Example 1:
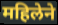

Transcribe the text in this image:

महिलेने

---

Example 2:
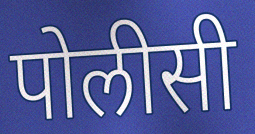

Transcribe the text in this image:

पोलीसी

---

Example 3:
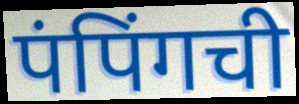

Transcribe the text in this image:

पंपिंगची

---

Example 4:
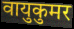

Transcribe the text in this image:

वायुकुमर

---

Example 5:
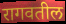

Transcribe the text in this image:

रागवतील